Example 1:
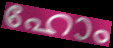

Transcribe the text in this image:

ഹോം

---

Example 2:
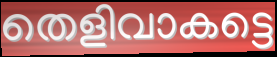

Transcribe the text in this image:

തെളിവാകട്ടെ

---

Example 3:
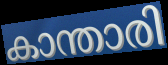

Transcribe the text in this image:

കാന്താരി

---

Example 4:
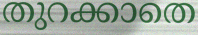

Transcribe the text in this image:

തുറക്കാതെ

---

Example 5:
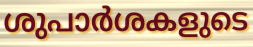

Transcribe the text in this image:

ശുപാർശകളുടെ